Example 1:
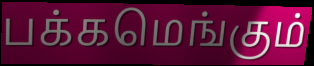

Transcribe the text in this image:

பக்கமெங்கும்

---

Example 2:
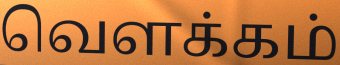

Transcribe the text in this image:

வெளக்கம்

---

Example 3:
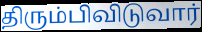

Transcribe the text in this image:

திரும்பிவிடுவார்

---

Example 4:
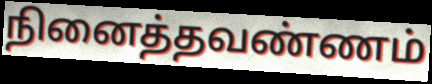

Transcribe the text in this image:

நினைத்தவண்ணம்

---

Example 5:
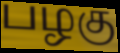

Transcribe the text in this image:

பழகு